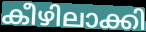
കീഴിലാക്കി